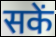
सकें